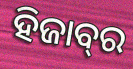
ହିଜାବ୍‌ର